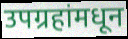
उपग्रहांमधून